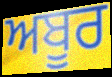
ਅਬੂਰ